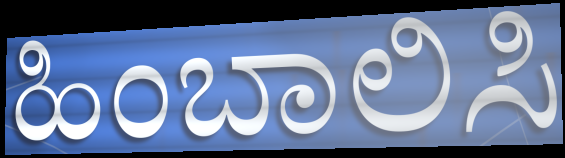
ಹಿಂಬಾಲಿಸಿ